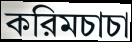
করিমচাচা